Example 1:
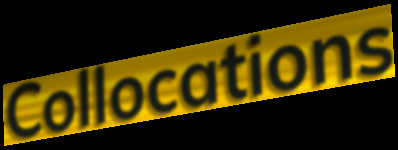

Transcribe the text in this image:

Collocations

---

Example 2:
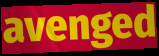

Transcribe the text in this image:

avenged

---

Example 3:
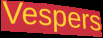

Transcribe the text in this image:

Vespers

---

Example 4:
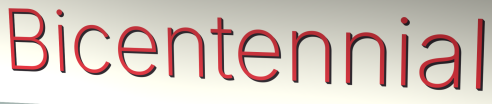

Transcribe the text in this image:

Bicentennial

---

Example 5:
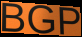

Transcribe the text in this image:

BGP